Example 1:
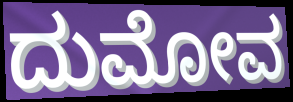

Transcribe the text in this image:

ದುಮೋವ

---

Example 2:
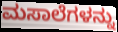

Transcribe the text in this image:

ಮಸಾಲೆಗಳನ್ನು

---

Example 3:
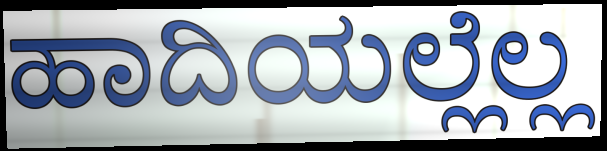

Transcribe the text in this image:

ಹಾದಿಯಲ್ಲೆಲ್ಲ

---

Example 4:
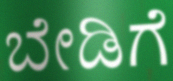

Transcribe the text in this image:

ಬೇಡಿಗೆ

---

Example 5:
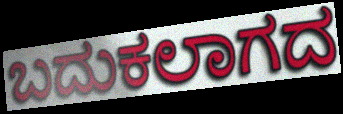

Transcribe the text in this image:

ಬದುಕಲಾಗದ